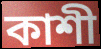
কাশী